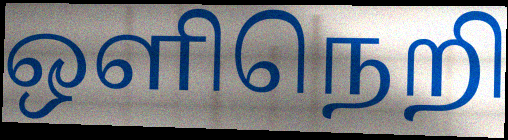
ஒளிநெறி